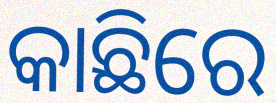
କାଛିରେ